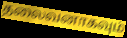
தலைவனாகவும்